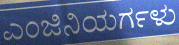
ಎಂಜಿನಿಯರ್ಗಳು